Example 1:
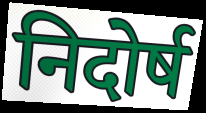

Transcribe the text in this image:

निदोर्ष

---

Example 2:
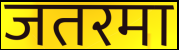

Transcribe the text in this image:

जतरमा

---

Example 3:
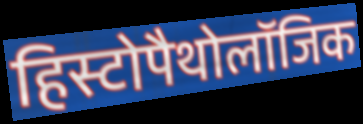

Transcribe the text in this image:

हिस्टोपैथोलॉजिक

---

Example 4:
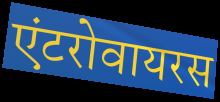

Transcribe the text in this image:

एंटरोवायरस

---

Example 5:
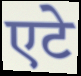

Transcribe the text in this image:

एटे